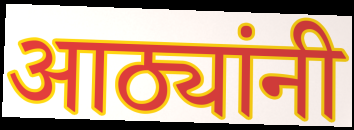
आठ्यांनी